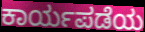
ಕಾರ್ಯಪಡೆಯ